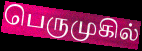
பெருமுகில்